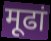
मूढां